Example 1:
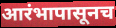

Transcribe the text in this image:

आरंभापासूनच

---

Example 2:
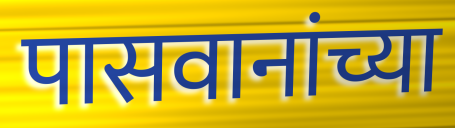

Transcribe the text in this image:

पासवानांच्या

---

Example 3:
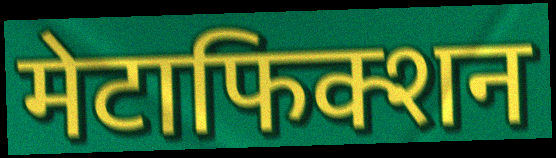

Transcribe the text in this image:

मेटाफिक्शन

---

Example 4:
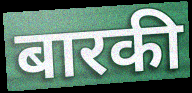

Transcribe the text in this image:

बारकी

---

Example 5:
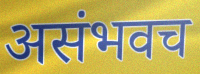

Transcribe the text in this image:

असंभवच